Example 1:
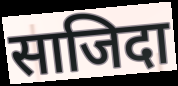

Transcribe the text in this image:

साजिदा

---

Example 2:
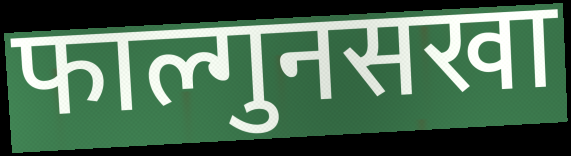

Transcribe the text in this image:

फाल्गुनसखा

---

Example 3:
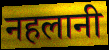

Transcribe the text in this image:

नहलानी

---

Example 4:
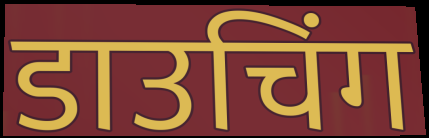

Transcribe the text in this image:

डाउचिंग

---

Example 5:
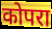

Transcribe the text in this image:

कोपरा